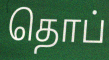
தொப்